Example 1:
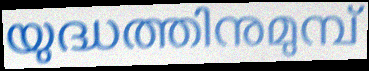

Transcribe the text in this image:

യുദ്ധത്തിനുമുമ്പ്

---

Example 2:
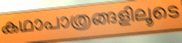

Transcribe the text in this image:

കഥാപാത്രങ്ങളിലൂടെ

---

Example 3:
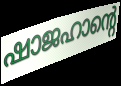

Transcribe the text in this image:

ഷാജഹാന്റെ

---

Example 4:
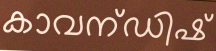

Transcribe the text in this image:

കാവന്ഡിഷ്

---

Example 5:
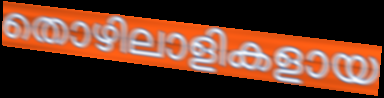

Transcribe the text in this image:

തൊഴിലാളികളായ